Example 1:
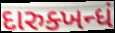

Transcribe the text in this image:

દારુક્ખન્ધં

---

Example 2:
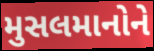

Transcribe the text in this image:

મુસલમાનોને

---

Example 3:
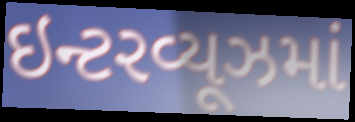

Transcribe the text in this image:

ઇન્ટરવ્યૂઝમાં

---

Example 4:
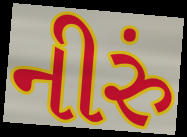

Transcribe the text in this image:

નીરું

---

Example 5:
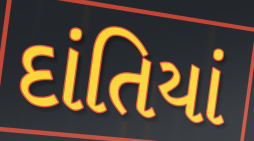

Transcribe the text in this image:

દાંતિયાં